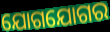
ଯୋଗଯୋଗର